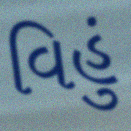
વિહું